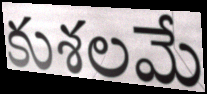
కుశలమే